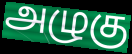
அழுகு